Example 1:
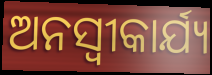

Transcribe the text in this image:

ଅନସ୍ୱୀକାର୍ଯ୍ୟ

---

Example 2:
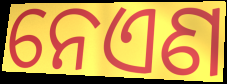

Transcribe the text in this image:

ନେଏଣ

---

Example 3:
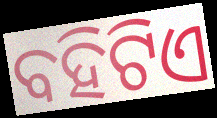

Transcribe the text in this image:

ବହିଟିଏ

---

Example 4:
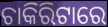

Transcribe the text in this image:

ଚାକିରିଟାରେ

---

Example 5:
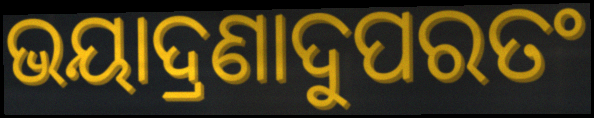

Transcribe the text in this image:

ଭୟାଦ୍ରଣାଦୁପରତଂ